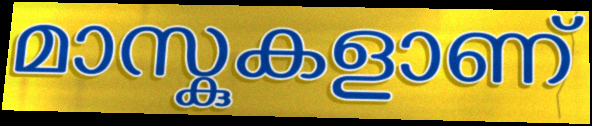
മാസ്കുകളാണ്